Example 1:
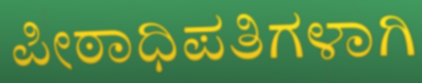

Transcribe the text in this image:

ಪೀಠಾಧಿಪತಿಗಳಾಗಿ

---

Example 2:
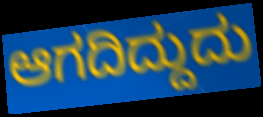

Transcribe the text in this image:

ಆಗದಿದ್ದುದು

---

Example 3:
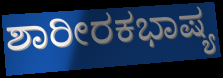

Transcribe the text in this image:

ಶಾರೀರಕಭಾಷ್ಯ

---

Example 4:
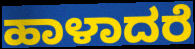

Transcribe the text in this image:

ಹಾಳಾದರೆ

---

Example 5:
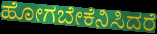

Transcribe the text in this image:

ಹೋಗಬೇಕೆನಿಸಿದರೆ